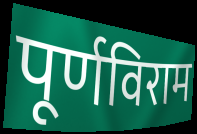
पूर्णविराम